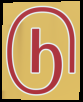
டு